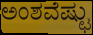
ಅಂಶವೆಷ್ಟು